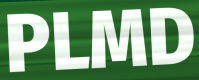
PLMD